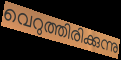
വെറുത്തിരിക്കുന്നു